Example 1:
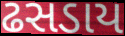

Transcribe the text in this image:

ઢસડાય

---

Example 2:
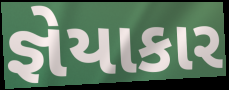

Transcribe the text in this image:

જ્ઞેયાકાર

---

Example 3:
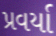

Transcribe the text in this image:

પ્રવર્યા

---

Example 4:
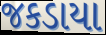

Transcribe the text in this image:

જકડાયા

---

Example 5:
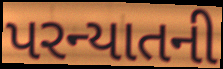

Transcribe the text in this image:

પરન્યાતની